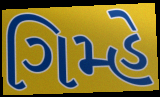
ગિમ્હે